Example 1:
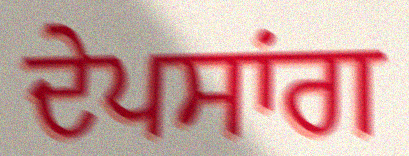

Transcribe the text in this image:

ਦੇਪਸਾਂਗ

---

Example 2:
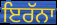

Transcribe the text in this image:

ਇਰੱਨਾ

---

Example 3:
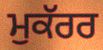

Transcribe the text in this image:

ਮੁਕੱਰਰ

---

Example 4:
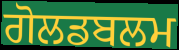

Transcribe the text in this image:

ਗੋਲਡਬਲਮ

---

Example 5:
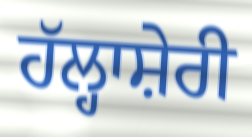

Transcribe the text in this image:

ਹੱਲ੍ਹਾਸ਼ੇਰੀ